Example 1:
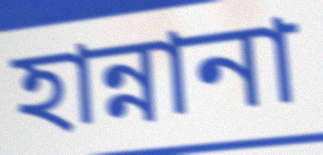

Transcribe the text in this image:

হান্নানা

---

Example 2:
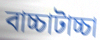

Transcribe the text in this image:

বাচ্চাটাচ্চা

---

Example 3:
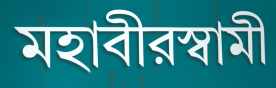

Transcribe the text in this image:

মহাবীরস্বামী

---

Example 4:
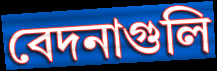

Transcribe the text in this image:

বেদনাগুলি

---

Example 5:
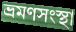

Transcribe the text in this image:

ভ্রমণসংস্থা